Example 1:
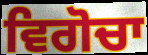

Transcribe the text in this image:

ਵਿਗੋਚਾ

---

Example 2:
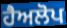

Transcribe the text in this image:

ਹੈਅਲੋਪ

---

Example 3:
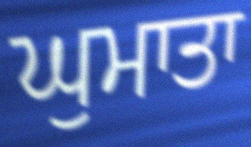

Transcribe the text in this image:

ਘੁਮਾਤਾ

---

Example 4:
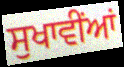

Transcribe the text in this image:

ਸੁਖਾਵੀਂਆਂ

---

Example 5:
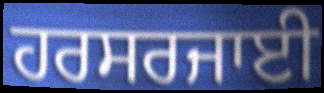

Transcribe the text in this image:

ਹਰਸਰਜਾਈ